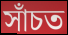
সাঁচত